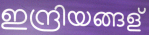
ഇന്ദ്രിയങ്ങള്